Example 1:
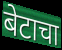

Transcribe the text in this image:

बेटाचा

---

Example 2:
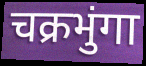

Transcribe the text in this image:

चक्रभुंगा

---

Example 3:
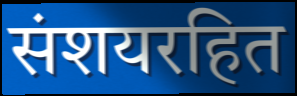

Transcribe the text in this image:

संशयरहित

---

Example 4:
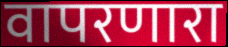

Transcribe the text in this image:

वापरणारा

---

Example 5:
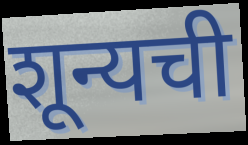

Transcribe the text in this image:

शून्यची